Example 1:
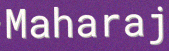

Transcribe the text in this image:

Maharaj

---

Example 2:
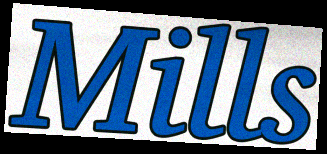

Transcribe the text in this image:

Mills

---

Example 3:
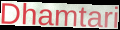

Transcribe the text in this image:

Dhamtari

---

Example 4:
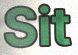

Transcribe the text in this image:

Sit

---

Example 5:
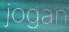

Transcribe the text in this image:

jogan